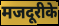
मजदूरीके